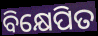
ବିକ୍ଷେପିତ